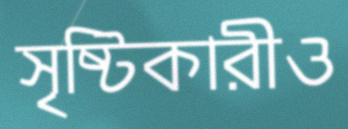
সৃষ্টিকারীও